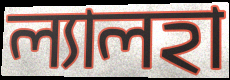
ল্যালহা